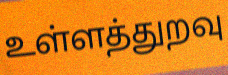
உள்ளத்துறவு